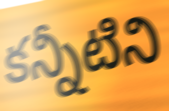
కన్నీటిని